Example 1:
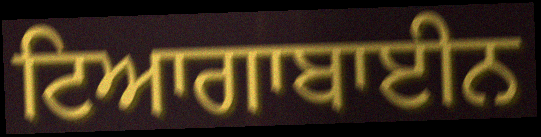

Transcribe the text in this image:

ਟਿਆਗਾਬਾਈਨ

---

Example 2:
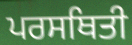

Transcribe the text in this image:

ਪਰਸਥਿਤੀ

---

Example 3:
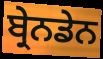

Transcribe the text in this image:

ਬ੍ਰੇਨਡੇਨ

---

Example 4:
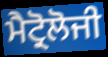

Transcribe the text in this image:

ਮੈਟ੍ਰੋਲੋਜੀ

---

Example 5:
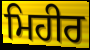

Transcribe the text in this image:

ਮਿਹੀਰ